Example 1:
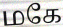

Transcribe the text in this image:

மகே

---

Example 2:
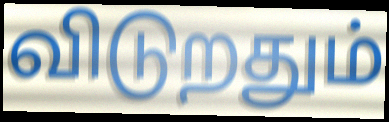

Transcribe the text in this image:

விடுறதும்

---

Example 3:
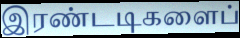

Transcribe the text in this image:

இரண்டடிகளைப்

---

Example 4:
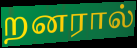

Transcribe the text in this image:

றனரால்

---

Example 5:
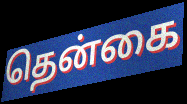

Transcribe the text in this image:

தென்கை